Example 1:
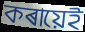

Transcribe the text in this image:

কৰায়েই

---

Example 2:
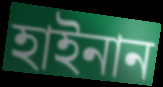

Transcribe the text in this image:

হাইনান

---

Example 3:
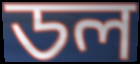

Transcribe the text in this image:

ডল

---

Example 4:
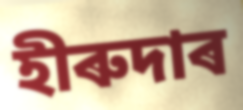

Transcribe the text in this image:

হীৰুদাৰ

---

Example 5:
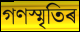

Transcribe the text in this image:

গণস্মৃতিৰ